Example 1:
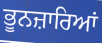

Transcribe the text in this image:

ਭੂਨਜ਼ਾਰਿਆਂ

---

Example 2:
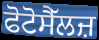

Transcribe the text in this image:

ਫੋਟੋਸੈੱਲਜ਼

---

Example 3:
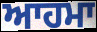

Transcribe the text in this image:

ਆਹਮਾ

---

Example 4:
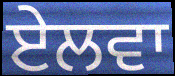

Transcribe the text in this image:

ਏਲਵਾ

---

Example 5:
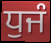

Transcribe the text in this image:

ਧੁਜੰ